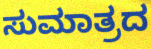
ಸುಮಾತ್ರದ